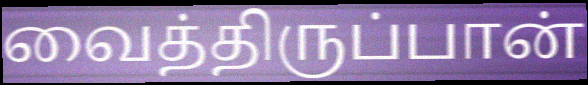
வைத்திருப்பான்